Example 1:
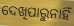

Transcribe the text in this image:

ଦେଖିପାରୁନାହିଁ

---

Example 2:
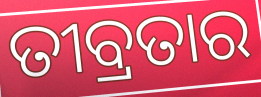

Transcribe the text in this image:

ତୀବ୍ରତାର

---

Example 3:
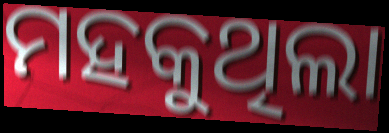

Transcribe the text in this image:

ମହକୁଥିଲା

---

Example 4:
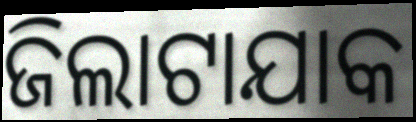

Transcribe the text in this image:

ଜିଲାଟାଯାକ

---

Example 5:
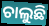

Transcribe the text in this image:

ଚାଲୁଛି